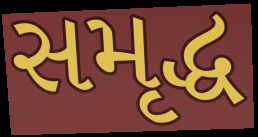
સમૃદ્ધ